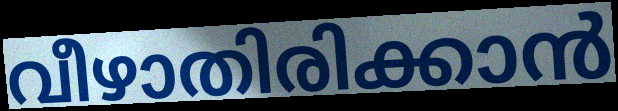
വീഴാതിരിക്കാൻ